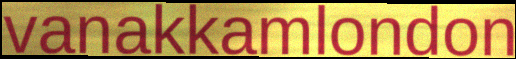
vanakkamlondon